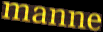
manne